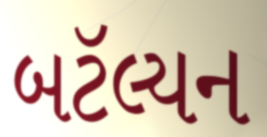
બટૅલ્યન